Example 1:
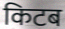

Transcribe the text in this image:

किटब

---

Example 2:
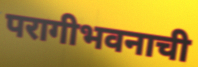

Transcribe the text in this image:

परागीभवनाची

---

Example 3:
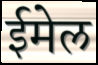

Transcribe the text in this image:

ईमेल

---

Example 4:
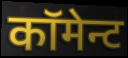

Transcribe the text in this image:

कॉमेन्ट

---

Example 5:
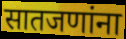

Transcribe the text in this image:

सातजणांना